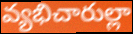
వ్యభిచారుల్లా